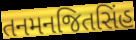
તનમનજિતસિંહ